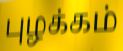
புழக்கம்